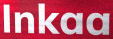
Inkaa